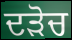
ਦੜੋਚ